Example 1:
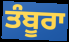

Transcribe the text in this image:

ਤੰਬੂਰਾ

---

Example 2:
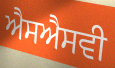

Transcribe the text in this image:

ਐਸਐਸਵੀ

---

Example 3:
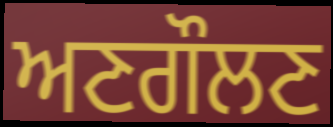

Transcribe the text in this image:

ਅਣਗੌਲਣ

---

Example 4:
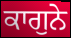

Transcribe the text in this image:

ਕਾਗੁਨੇ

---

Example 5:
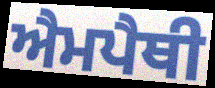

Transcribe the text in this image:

ਐਮਪੈਥੀ